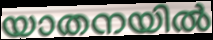
യാതനയിൽ